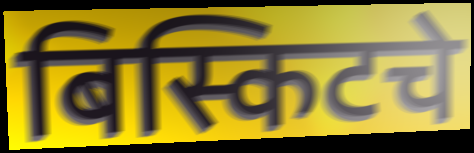
बिस्किटचे